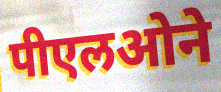
पीएलओने